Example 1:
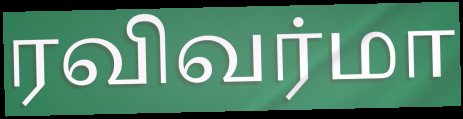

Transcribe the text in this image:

ரவிவர்மா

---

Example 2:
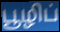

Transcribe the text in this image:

பூழிப்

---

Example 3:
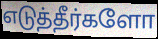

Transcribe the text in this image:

எடுத்தீர்களோ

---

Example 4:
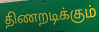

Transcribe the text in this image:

திணறடிக்கும்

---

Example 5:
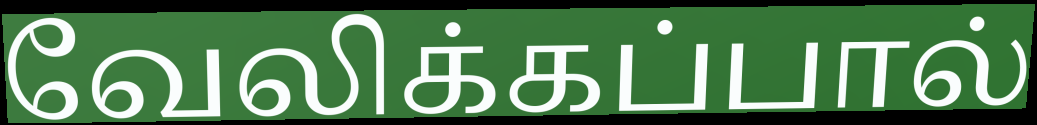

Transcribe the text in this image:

வேலிக்கப்பால்